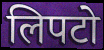
लिपटो